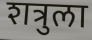
शत्रुला